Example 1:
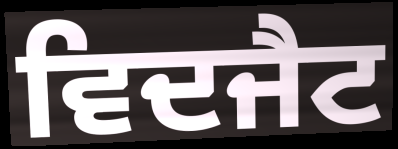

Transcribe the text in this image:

ਵਿਦਜੈਟ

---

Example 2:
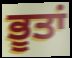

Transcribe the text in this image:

ਭੂਤਾਂ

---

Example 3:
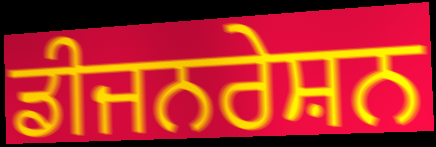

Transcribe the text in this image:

ਡੀਜਨਰੇਸ਼ਨ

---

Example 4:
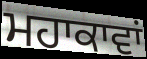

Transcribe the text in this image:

ਮਹਾਕਾਵਾਂ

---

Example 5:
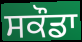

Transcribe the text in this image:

ਸਕੌਡਾ